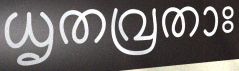
ധൃതവ്രതാഃ